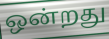
ஒன்றது